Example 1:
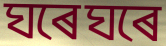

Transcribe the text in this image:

ঘৰেঘৰে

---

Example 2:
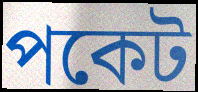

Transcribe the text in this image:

পকেট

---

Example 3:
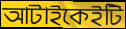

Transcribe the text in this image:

আটাইকেইটি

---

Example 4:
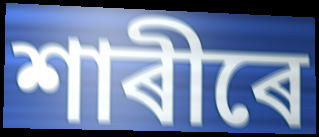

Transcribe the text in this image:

শাৰীৰে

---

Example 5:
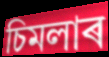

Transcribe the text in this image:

চিমলাৰ